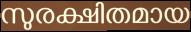
സുരക്ഷിതമായ